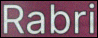
Rabri